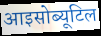
आइसोब्यूटिल